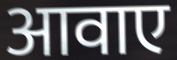
आवाए